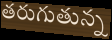
తరుగుతున్న